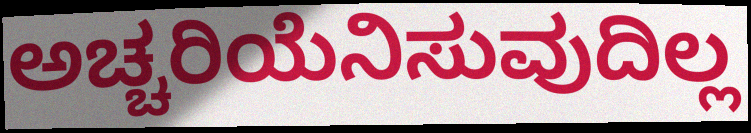
ಅಚ್ಚರಿಯೆನಿಸುವುದಿಲ್ಲ